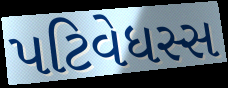
પટિવેધસ્સ